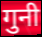
गुनी